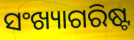
ସଂଖ୍ୟାଗରିଷ୍ଟ